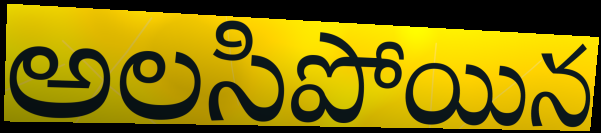
అలసిపోయిన